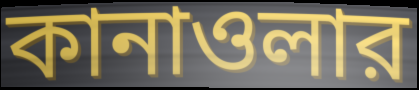
কানাওলার